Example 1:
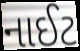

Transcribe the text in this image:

નાઈટ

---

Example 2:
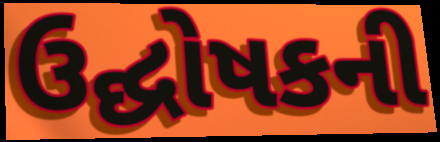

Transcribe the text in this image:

ઉદ્ઘોષકની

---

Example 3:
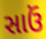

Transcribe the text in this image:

સાઉં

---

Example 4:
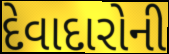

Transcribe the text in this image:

દેવાદારોની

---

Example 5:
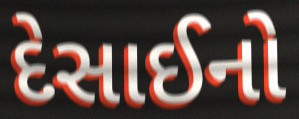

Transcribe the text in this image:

દેસાઈનો